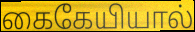
கைகேயியால்